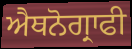
ਐਥਨੋਗ੍ਰਾਫੀ